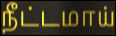
நீட்டமாய்